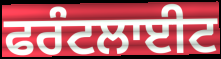
ਫਰੰਟਲਾਈਟ